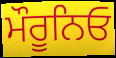
ਮੌਰੂਨਿਓ